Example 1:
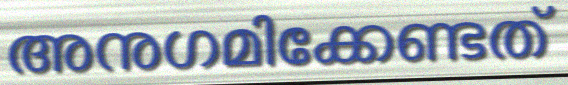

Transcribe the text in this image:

അനുഗമിക്കേണ്ടത്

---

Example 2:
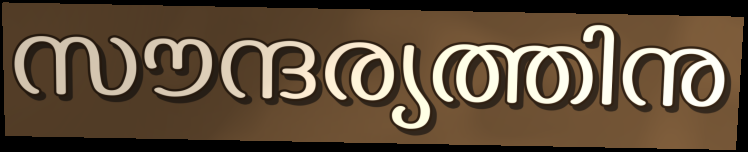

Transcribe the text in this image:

സൗന്ദര്യത്തിനു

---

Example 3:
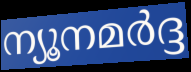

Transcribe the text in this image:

ന്യൂനമർദ്ദ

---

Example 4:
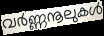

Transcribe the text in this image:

വർണ്ണനൂലുകൾ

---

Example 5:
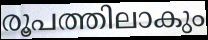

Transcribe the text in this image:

രൂപത്തിലാകും